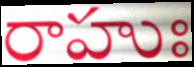
రాహుః